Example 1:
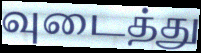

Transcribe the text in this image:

வுடைத்து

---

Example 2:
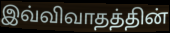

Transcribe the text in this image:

இவ்விவாதத்தின்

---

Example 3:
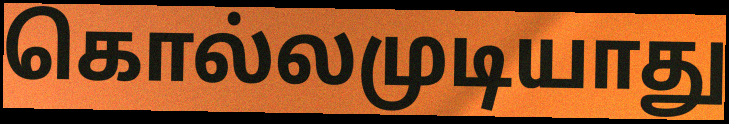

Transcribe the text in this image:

கொல்லமுடியாது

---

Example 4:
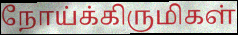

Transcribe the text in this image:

நோய்க்கிருமிகள்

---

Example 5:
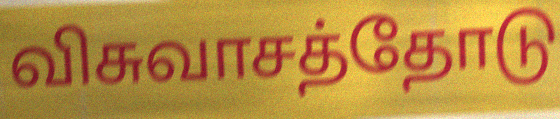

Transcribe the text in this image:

விசுவாசத்தோடு